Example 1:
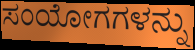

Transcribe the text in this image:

ಸಂಯೋಗಗಳನ್ನು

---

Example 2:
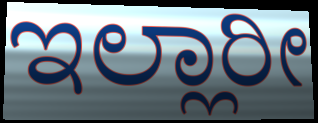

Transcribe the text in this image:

ಇಲ್ಲಾರೀ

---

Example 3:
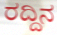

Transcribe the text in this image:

ರದ್ದಿನ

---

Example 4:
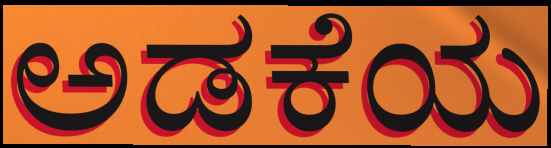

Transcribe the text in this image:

ಅಡಕೆಯ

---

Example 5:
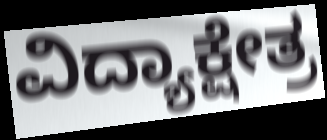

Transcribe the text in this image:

ವಿದ್ಯಾಕ್ಷೇತ್ರ